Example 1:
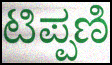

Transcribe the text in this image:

ಟಿಪ್ಪಣಿ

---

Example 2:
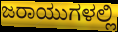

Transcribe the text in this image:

ಜರಾಯುಗಳಲ್ಲಿ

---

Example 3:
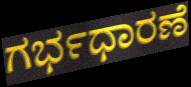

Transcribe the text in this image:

ಗರ್ಭಧಾರಣೆ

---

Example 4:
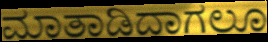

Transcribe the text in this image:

ಮಾತಾಡಿದಾಗಲೂ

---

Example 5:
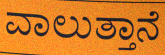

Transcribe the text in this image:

ವಾಲುತ್ತಾನೆ